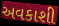
અવકાશી